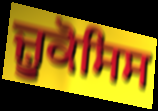
ਜ਼ੂਕੋਸਿਸ